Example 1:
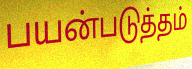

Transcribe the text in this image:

பயன்படுத்தம்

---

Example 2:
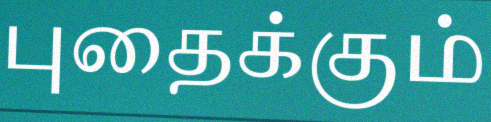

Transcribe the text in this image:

புதைக்கும்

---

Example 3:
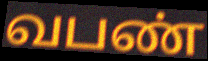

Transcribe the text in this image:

வபண்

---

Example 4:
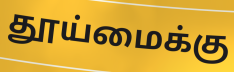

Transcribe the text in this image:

தூய்மைக்கு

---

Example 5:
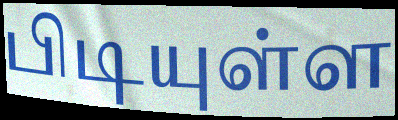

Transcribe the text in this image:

பிடியுள்ள